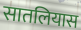
सातलियास